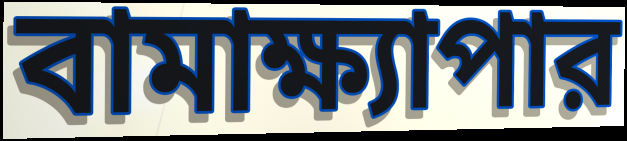
বামাক্ষ্যাপার